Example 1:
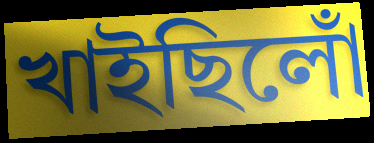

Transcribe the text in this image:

খাইছিলোঁ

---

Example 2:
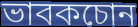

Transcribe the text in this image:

ভাবকচোন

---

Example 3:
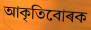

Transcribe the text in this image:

আকৃতিবোৰক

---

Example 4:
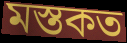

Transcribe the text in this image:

মস্তকত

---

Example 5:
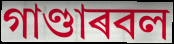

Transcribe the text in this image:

গাণ্ডাৰবল